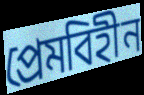
প্রেমবিহীন